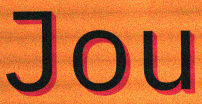
Jou